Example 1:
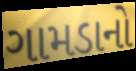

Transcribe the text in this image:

ગામડાનો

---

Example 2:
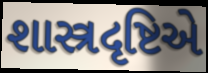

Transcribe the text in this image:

શાસ્ત્રદૃષ્ટિએ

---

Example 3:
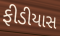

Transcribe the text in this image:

ફીડીયાસ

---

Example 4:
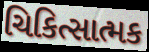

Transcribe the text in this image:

ચિકિત્સાત્મક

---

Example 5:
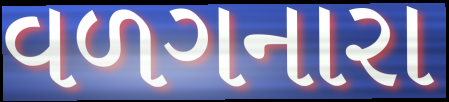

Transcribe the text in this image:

વળગનારા